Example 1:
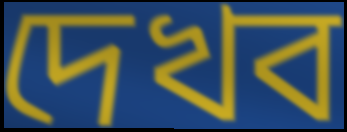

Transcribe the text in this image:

দেখব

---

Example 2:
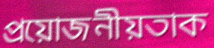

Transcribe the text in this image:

প্ৰয়োজনীয়তাক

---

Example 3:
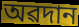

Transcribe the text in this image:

অৱদান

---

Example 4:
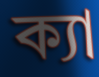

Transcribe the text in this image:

ক্যা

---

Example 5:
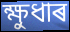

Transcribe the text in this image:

ক্ষুধাৰ